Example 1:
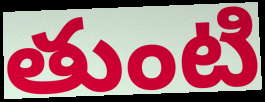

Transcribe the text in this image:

తుంటి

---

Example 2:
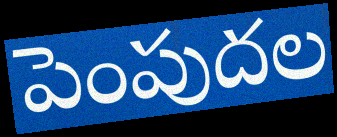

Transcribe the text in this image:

పెంపుదల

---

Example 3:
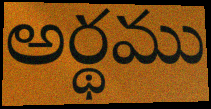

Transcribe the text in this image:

అర్థము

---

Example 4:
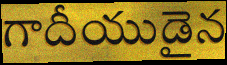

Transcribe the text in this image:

గాదీయుడైన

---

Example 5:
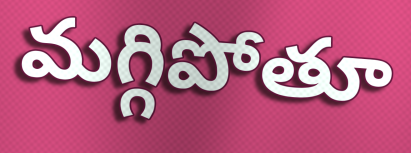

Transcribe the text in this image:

మగ్గిపోతూ